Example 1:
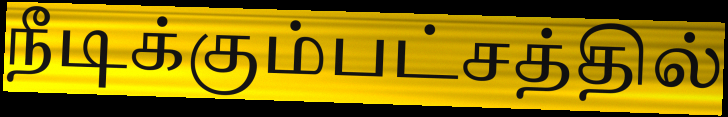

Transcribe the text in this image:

நீடிக்கும்பட்சத்தில்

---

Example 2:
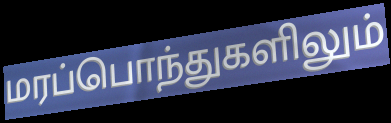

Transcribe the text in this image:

மரப்பொந்துகளிலும்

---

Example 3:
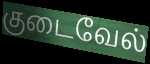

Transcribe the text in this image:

குடைவேல்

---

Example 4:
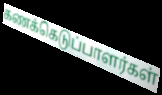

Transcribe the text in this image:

கணக்கெடுப்பாளர்கள்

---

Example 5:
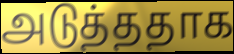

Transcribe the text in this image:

அடுத்ததாக